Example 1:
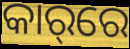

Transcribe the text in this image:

କାର୍‌ରେ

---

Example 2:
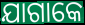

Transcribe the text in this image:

ଯାଗାକେ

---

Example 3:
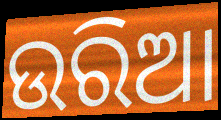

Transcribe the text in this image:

ଉରିଆ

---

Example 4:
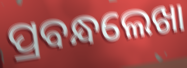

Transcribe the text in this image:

ପ୍ରବନ୍ଧଲେଖା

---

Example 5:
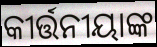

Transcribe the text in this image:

କୀର୍ତ୍ତନୀୟାଙ୍କ